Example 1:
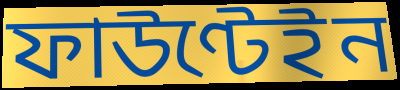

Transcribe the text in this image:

ফাউণ্টেইন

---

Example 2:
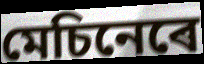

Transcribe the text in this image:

মেচিনেৰে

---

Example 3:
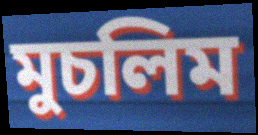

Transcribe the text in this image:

মুচলিম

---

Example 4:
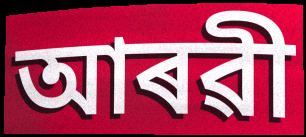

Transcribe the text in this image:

আৰৱী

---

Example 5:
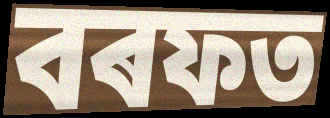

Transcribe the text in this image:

বৰফত